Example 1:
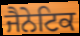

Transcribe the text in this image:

ਜੈਨੇਟਿਕ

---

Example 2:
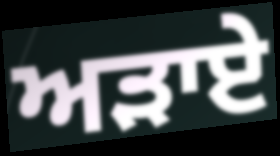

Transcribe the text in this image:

ਅੜਾਏ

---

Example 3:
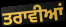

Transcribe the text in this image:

ਤਰਾਵੀਆਂ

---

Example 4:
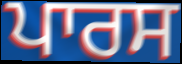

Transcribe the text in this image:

ਪਾਰਸ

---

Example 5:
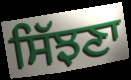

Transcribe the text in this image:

ਸਿੱਝਣਾ